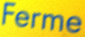
Ferme